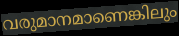
വരുമാനമാണെങ്കിലും